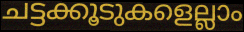
ചട്ടക്കൂടുകളെല്ലാം